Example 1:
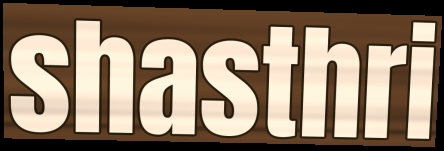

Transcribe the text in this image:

shasthri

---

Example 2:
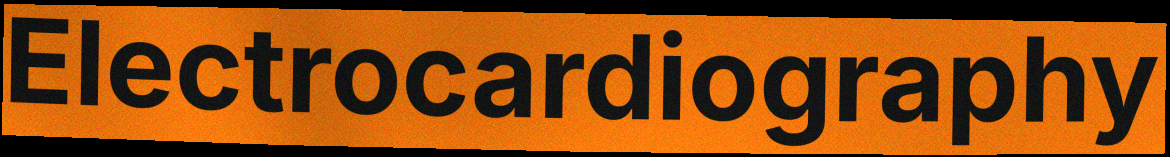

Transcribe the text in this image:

Electrocardiography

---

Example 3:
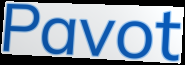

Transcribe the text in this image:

Pavot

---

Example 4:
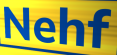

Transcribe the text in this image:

Nehf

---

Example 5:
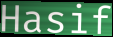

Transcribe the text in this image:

Hasif